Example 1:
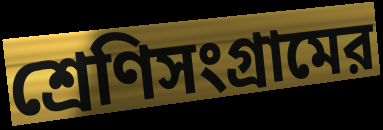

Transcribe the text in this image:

শ্রেণিসংগ্রামের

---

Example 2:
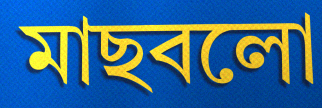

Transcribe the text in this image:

মাছবলো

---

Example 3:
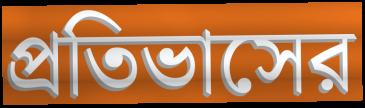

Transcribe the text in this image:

প্রতিভাসের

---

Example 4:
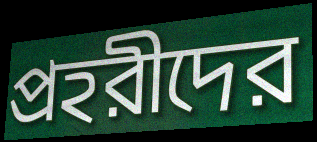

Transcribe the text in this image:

প্রহরীদের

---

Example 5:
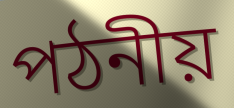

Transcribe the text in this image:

পঠনীয়